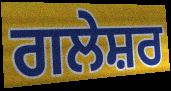
ਗਲੇਸ਼ਰ